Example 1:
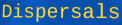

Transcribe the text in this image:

Dispersals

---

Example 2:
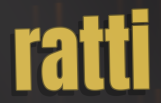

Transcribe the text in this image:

ratti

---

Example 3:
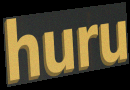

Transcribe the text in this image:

huru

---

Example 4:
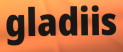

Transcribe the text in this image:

gladiis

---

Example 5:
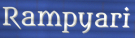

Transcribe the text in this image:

Rampyari